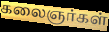
கலைஞர்கள்